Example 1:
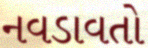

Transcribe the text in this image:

નવડાવતો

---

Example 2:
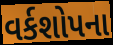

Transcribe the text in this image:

વર્કશોપના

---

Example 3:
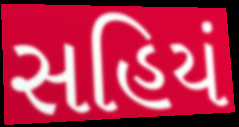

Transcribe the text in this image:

સહિયં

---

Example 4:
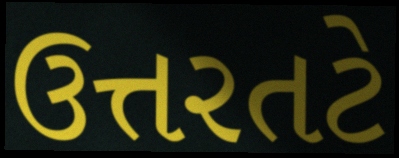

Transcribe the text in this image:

ઉત્તરતટે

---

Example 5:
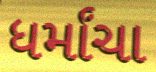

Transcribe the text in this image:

ધર્માંચા